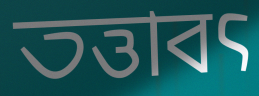
তত্তাবৎ